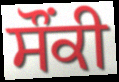
ਸੌਂਕੀ